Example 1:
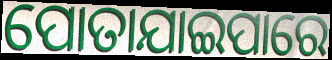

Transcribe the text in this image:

ପୋତାଯାଇପାରେ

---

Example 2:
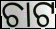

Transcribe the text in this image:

ଚାଟ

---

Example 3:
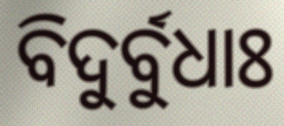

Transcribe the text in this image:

ବିଦୁର୍ବୁଧାଃ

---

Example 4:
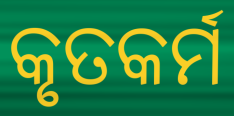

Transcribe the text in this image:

କୃତକର୍ମ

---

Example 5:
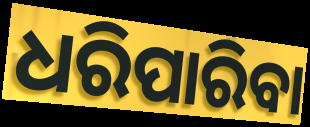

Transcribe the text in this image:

ଧରିପାରିବା